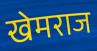
खेमराज